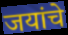
जयांचे